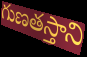
గుణతస్తాని